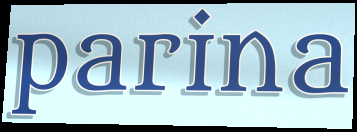
parina